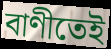
বাণীতেই